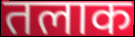
तलाक